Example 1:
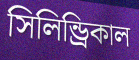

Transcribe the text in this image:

সিলিন্ড্রিকাল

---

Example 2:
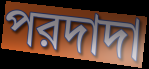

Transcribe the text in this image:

পরদাদা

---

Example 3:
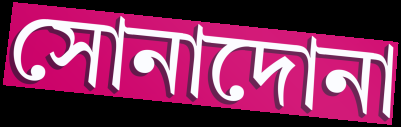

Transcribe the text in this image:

সোনাদোনা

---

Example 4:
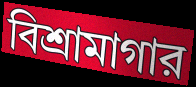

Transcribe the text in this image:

বিশ্রামাগার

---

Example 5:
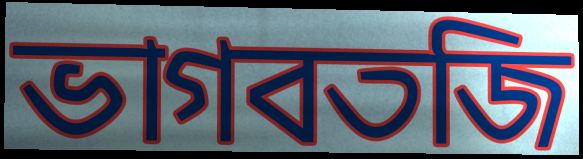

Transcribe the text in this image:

ভাগবতজি